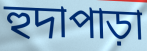
হুদাপাড়া